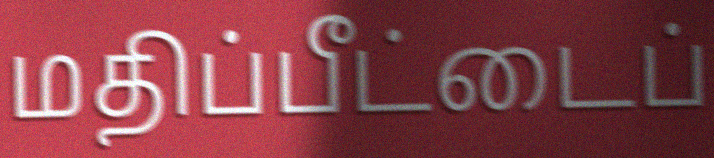
மதிப்பீட்டைப்